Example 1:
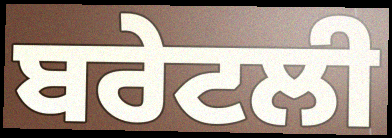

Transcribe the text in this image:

ਬਰੇਟਲੀ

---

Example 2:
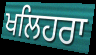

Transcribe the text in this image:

ਖਲਿਹਰਾ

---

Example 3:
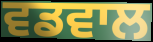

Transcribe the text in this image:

ਵਡਵਾਲ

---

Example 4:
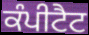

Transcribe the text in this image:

ਕੰਪੀਟੈਟ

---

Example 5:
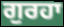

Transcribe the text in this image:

ਗੁਰਹਾ